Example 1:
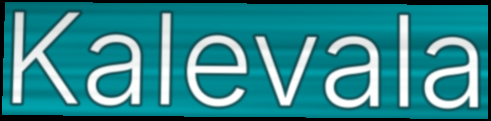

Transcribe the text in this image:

Kalevala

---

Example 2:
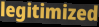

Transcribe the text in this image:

legitimized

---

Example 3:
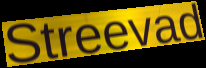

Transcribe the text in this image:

Streevad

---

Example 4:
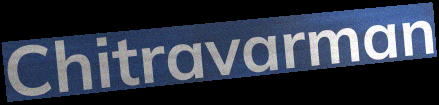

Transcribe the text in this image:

Chitravarman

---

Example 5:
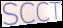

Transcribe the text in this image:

SCCT